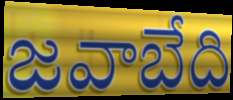
జవాబేది